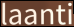
laanti